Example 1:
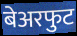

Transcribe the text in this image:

बेअरफुट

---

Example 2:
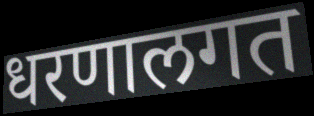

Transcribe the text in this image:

धरणालगत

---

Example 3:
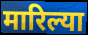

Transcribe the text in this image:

मारिल्या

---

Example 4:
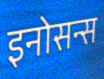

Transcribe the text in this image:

इनोसन्स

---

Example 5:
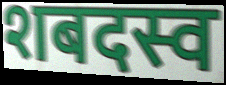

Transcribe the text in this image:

शबदस्व